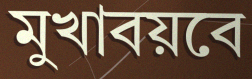
মুখাবয়বে